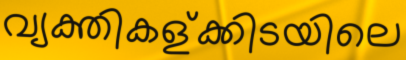
വ്യക്തികള്ക്കിടയിലെ